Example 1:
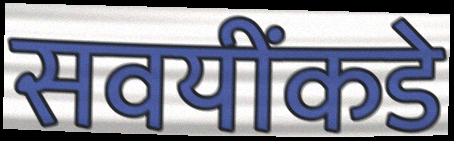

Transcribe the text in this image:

सवयींकडे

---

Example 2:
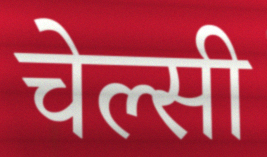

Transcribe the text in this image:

चेल्सी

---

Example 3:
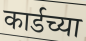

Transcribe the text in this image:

कार्डच्या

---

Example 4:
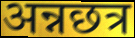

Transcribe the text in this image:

अन्नछत्र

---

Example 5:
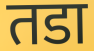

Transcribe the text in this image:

तडा